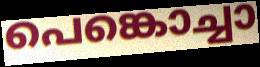
പെങ്കൊച്ചാ